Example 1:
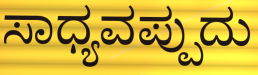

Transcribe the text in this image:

ಸಾಧ್ಯವಪ್ಪುದು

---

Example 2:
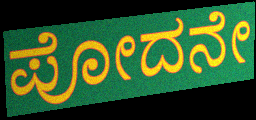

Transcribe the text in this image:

ಪೋದನೇ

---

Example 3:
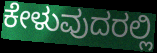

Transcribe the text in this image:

ಕೇಳುವುದರಲ್ಲಿ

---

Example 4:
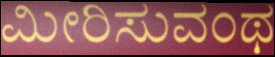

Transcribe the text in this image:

ಮೀರಿಸುವಂಥ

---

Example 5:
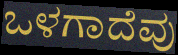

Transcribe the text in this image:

ಒಳಗಾದೆವು